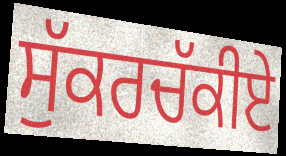
ਸੁੱਕਰਚੱਕੀਏ